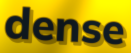
dense